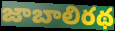
జాబాలిరథ